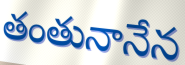
తంతునానేన